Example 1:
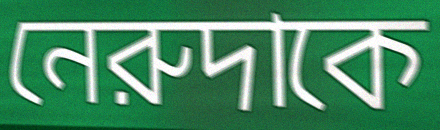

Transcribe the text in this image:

নেরুদাকে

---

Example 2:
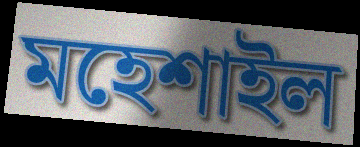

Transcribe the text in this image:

মহেশাইল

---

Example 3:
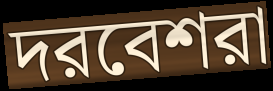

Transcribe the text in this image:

দরবেশরা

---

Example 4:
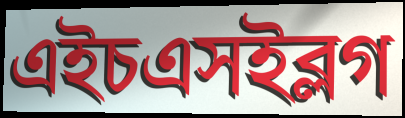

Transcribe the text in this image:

এইচএসইব্লগ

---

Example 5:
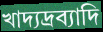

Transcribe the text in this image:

খাদ্যদ্রব্যাদি